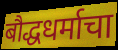
बौद्धधर्माचा